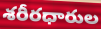
శరీరధారుల